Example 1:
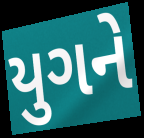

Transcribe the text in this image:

યુગને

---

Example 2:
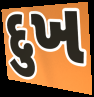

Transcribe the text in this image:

દુખ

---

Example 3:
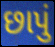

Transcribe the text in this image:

છાપું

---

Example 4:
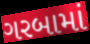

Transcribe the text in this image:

ગરબામાં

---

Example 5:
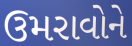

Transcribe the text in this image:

ઉમરાવોને